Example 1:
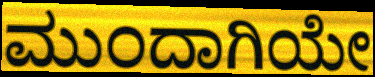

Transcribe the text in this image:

ಮುಂದಾಗಿಯೇ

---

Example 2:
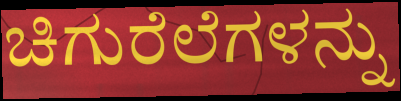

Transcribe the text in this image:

ಚಿಗುರೆಲೆಗಳನ್ನು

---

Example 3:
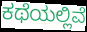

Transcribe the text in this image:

ಕಥೆಯಲ್ಲಿವೆ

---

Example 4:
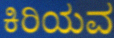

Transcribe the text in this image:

ಕಿರಿಯವ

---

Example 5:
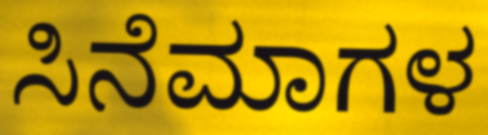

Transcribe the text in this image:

ಸಿನೆಮಾಗಳ